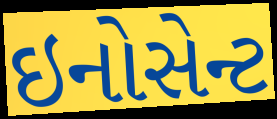
ઇનોસેન્ટ